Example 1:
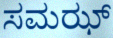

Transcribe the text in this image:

ಸಮಝ್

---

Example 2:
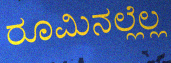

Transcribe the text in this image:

ರೂಮಿನಲ್ಲೆಲ್ಲ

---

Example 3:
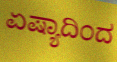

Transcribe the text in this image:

ಏಷ್ಯಾದಿಂದ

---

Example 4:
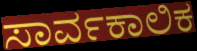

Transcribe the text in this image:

ಸಾರ್ವಕಾಲಿಕ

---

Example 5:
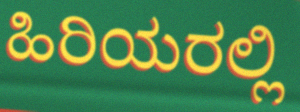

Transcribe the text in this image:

ಹಿರಿಯರಲ್ಲಿ